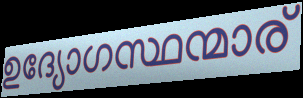
ഉദ്യോഗസ്ഥന്മാര്